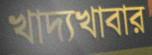
খাদ্যখাবার